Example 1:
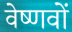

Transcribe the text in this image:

वेष्णवों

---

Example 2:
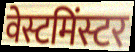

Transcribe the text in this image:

वेस्‍टमिंस्‍टर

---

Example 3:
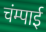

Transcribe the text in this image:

चंम्पाई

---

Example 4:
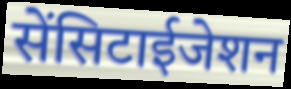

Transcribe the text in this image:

सेंसिटाईजेशन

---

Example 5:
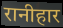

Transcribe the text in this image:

रानीहार